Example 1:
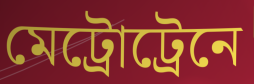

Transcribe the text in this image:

মেট্রোট্রেনে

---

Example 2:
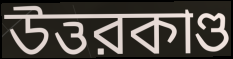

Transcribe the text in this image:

উত্তরকাণ্ড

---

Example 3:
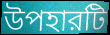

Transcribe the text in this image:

উপহারটি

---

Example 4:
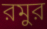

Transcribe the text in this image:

রমুর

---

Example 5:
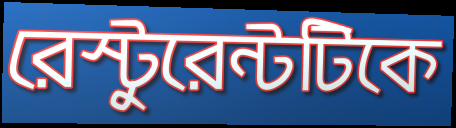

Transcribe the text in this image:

রেস্টুরেন্টটিকে